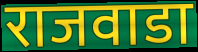
राजवाडा